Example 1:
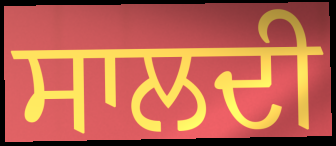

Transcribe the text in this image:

ਸਾਲਦੀ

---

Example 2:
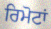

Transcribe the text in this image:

ਰਿਮੋਟਾਂ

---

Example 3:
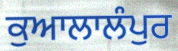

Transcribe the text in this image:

ਕੁਆਲਾਲੰਪੁਰ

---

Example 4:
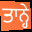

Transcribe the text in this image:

ਤਾਨ੍ਹੇ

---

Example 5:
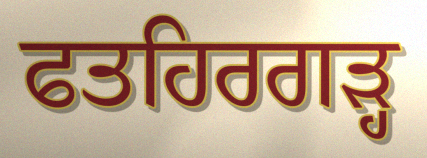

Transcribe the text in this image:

ਫਤਹਿਰਗੜ੍ਹ